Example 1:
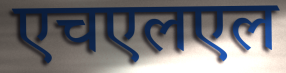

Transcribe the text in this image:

एचएलएल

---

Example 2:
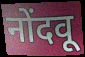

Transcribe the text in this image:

नोंदवू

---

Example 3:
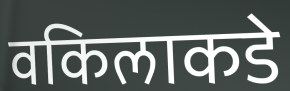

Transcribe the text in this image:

वकिलाकडे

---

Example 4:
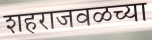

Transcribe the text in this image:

शहराजवळच्या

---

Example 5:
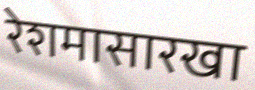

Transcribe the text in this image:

रेशमासारखा